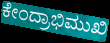
ಕೇಂದ್ರಾಭಿಮುಖಿ